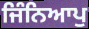
ਜਿੰਨਿਆਪੁ